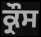
ਕ੍ਰੌਸ